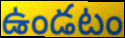
ఉండటం